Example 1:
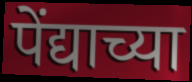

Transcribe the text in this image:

पेंद्याच्या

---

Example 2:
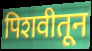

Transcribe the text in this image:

पिशवीतून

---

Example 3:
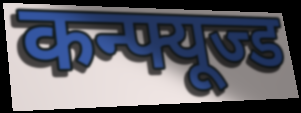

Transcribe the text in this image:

कन्फ्यूज्ड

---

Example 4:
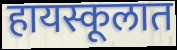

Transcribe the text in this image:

हायस्कूलात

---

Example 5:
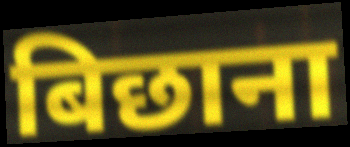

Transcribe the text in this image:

बिछाना